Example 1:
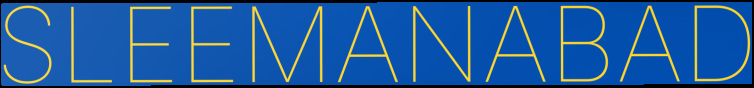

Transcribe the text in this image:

SLEEMANABAD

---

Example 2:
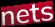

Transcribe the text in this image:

nets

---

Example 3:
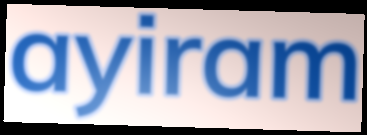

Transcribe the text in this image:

ayiram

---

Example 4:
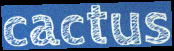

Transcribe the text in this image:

cactus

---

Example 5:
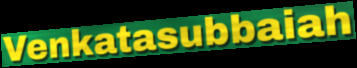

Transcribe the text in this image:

Venkatasubbaiah